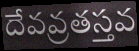
దేవవ్రతస్తవ